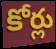
కోర్లు